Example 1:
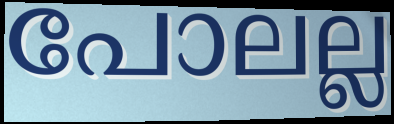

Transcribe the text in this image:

പോലല്ല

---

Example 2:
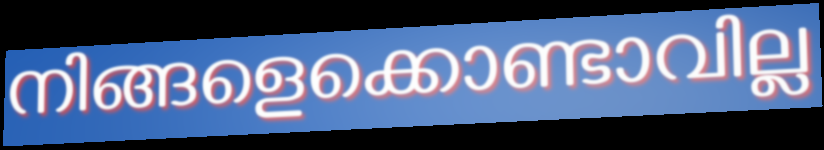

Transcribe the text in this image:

നിങ്ങളെക്കൊണ്ടാവില്ല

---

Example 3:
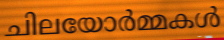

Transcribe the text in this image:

ചിലയോർമ്മകൾ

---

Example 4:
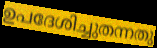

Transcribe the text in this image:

ഉപദേശിച്ചുതന്നതു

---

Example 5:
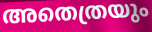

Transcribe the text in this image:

അതെത്രയും